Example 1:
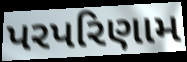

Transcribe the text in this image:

પરપરિણામ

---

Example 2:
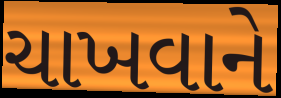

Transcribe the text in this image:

ચાખવાને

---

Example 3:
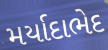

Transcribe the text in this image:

મર્યાદાભેદ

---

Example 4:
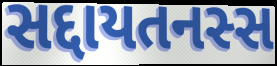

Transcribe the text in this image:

સદ્દાયતનસ્સ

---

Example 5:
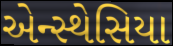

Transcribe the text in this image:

એન્સ્થેસિયા